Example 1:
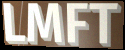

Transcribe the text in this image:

LMFT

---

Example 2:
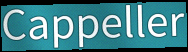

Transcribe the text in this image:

Cappeller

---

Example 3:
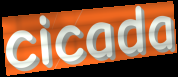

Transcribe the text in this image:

cicada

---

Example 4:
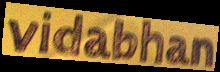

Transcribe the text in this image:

vidabhan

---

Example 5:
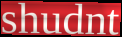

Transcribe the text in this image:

shudnt